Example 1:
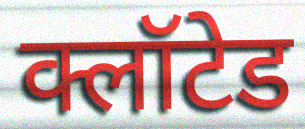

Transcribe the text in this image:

क्लॉटेड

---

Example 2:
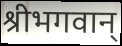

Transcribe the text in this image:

श्रीभगवान्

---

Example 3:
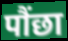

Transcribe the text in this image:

पौंछा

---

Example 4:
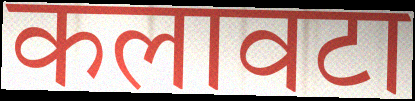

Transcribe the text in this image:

कलावटा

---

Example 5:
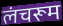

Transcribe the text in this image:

लंचरूम